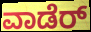
ವಾಡೆರ್